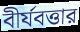
বীর্যবত্তার